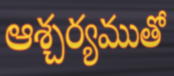
ఆశ్చర్యముతో